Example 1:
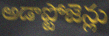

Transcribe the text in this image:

అడాప్టోజెన్లు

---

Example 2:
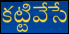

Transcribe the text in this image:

కట్టివేసే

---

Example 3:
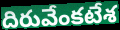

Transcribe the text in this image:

దిరువేంకటేశ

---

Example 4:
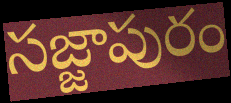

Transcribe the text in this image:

సజ్జాపురం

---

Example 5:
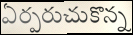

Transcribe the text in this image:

ఏర్పరుచుకొన్న